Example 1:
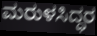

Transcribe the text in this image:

ಮರುಳಸಿದ್ಧರ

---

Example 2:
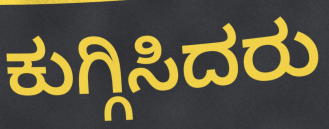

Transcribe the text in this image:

ಕುಗ್ಗಿಸಿದರು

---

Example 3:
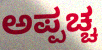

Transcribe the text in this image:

ಅಪ್ಪಚ್ಚ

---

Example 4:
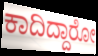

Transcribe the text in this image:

ಕಾದಿದ್ದಾರೋ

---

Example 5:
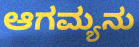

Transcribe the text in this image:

ಆಗಮ್ಯನು